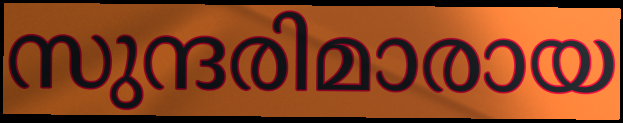
സുന്ദരിമാരായ